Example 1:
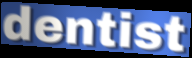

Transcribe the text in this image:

dentist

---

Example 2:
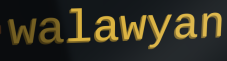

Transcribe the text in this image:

walawyan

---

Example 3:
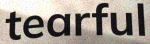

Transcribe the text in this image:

tearful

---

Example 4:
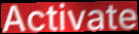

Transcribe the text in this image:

Activate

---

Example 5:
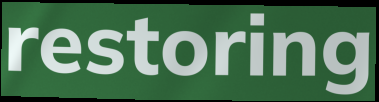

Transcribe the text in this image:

restoring